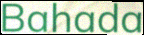
Bahada